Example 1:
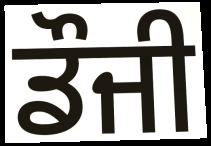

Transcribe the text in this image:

ਡੌਜੀ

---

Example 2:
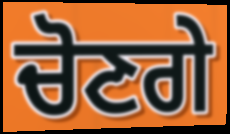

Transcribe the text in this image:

ਚੋਣਗੇ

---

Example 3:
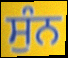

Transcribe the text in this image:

ਸੁੰਨ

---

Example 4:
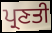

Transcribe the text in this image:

ਪ੍ਰਣਤੀ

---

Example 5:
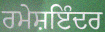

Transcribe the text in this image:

ਰਮੇਸ਼ਇੰਦਰ